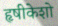
हृषीकेशो